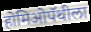
होमिओपॅथीला